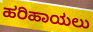
ಹರಿಹಾಯಲು